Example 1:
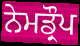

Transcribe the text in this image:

ਨੇਮਡ੍ਰੌਪ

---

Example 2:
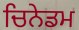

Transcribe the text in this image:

ਚਿਨੇਡਮ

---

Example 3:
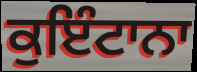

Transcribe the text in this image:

ਕੁਇੰਟਾਨਾ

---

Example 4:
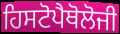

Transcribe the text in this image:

ਹਿਸਟੋਪੈਥੋਲੋਜੀ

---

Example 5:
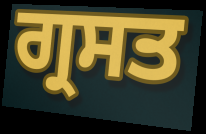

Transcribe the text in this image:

ਗ੍ਰਸਤ